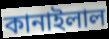
কানাইলাল